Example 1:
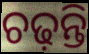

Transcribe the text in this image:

ଚଢ଼ନ୍ତି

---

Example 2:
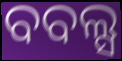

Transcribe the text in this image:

ବବଲ୍ସ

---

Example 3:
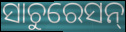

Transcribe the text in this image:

ସାଚୁରେସନ୍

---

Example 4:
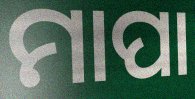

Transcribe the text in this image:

ମାପା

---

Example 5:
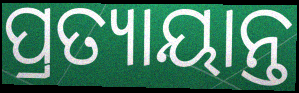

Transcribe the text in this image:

ପ୍ରତ୍ୟାୟାନ୍ତ